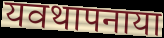
यवथापनाया